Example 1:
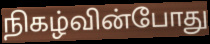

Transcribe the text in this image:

நிகழ்வின்போது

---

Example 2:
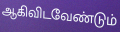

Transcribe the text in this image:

ஆகிவிடவேண்டும்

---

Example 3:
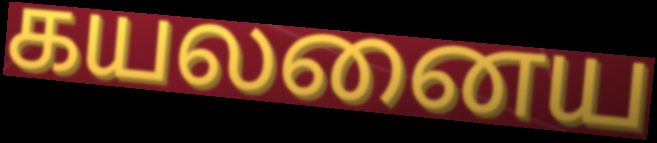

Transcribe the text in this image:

கயலனைய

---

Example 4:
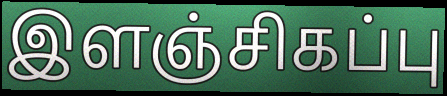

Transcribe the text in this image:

இளஞ்சிகப்பு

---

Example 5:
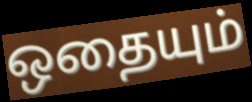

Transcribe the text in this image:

ஒதையும்